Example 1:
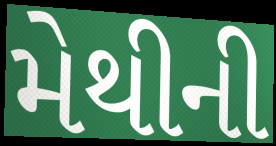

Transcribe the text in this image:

મેથીની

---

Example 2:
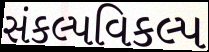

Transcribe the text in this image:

સંકલ્પવિકલ્પ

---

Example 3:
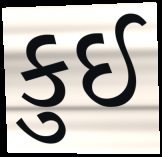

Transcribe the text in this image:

કુઈ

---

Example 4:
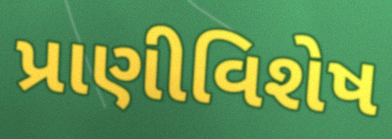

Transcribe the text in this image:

પ્રાણીવિશેષ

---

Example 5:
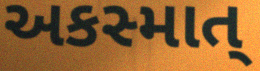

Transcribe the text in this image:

અકસ્માત્